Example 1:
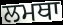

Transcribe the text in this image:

ਲਮਥਾ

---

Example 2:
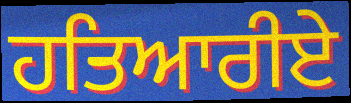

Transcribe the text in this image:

ਹਤਿਆਰੀਏ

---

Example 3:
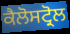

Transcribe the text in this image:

ਕੈਲੋਸਟ੍ਰੋਲ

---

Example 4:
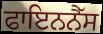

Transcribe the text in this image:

ਫਾਇਨਨੈੱਸ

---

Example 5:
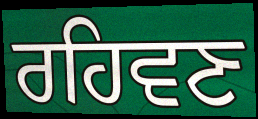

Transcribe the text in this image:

ਰਹਿਵਣ